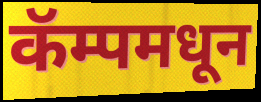
कॅम्पमधून